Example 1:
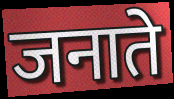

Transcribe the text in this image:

जनाते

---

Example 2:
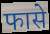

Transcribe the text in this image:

फासे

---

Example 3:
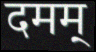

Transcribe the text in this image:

दमम्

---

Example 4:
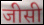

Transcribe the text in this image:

जीसी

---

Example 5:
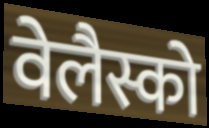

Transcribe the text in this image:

वेलैस्को